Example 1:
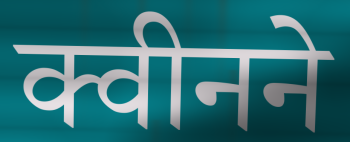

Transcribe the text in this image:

क्वीनने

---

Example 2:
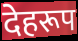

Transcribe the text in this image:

देहरूप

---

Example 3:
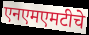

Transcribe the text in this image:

एनएमएमटीचे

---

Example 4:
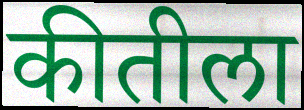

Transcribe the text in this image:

कीतीला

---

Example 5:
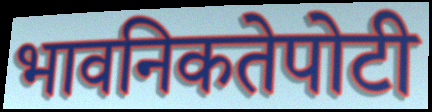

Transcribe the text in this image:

भावनिकतेपोटी